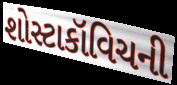
શોસ્ટાકૉવિચની